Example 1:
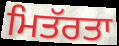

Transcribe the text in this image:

ਮਿਤੱਰਤਾ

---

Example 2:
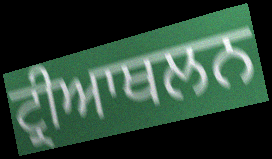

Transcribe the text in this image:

ਟ੍ਰੀਆਥਲਨ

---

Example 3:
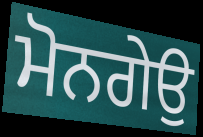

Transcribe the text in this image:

ਮੋਨਗੇਉ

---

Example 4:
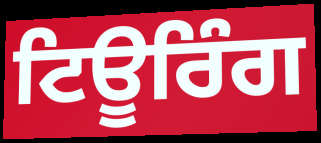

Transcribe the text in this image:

ਟਿਊਰਿੰਗ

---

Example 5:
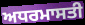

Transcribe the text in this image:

ਅਧਰਮਾਸਤੀ